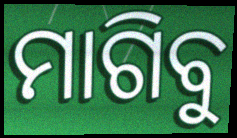
ମାଗିବୁ